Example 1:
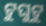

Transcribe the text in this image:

ଟୁଘୁଟୁ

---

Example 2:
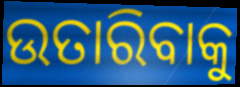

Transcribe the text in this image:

ଉତାରିବାକୁ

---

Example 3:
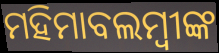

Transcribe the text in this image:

ମହିମାବଲମ୍ବୀଙ୍କ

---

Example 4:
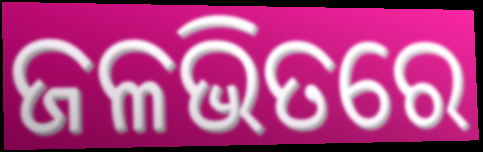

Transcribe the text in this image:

ଜଳଭିତରେ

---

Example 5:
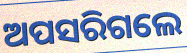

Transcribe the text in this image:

ଅପସରିଗଲେ